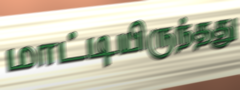
மாட்டியிருந்தது